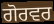
ਗੋਰਵਰ